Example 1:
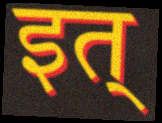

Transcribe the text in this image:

इत्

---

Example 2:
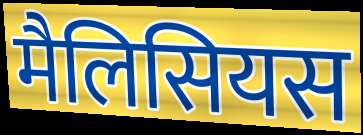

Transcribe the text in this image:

मैलिसियस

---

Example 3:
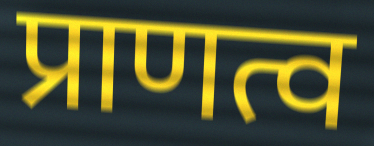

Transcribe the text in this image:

प्राणत्व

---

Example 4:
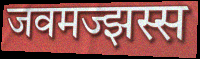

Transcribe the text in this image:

जवमज्झस्स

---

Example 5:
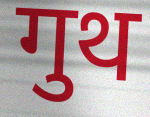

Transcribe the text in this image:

गुथ